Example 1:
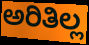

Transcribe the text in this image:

ಅರಿತಿಲ್ಲ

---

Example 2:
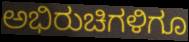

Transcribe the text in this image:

ಅಭಿರುಚಿಗಳಿಗೂ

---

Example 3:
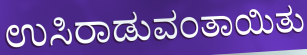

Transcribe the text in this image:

ಉಸಿರಾಡುವಂತಾಯಿತು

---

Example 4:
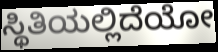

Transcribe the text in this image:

ಸ್ಥಿತಿಯಲ್ಲಿದೆಯೋ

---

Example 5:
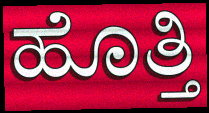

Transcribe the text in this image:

ಹೊತ್ತಿ